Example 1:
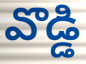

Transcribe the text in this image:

వొడ్డి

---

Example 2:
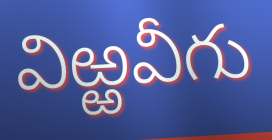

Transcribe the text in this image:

విఱ్ఱవీగు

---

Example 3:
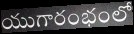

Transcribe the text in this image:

యుగారంభంలో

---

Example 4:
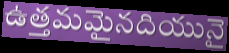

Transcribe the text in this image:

ఉత్తమమైనదియునై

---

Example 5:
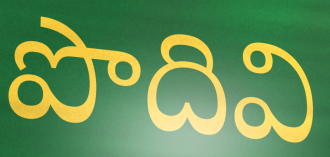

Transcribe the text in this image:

పొదివి